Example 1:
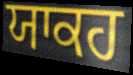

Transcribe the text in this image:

ਯਾਕਹ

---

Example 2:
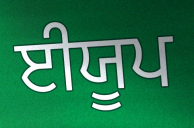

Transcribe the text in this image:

ਈਯੂਪ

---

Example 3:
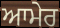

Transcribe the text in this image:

ਆਮੇਰ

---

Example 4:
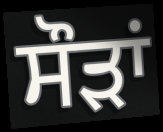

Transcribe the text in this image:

ਸੌੜਾਂ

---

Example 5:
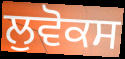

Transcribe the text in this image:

ਲੁਵੋਕਸ